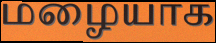
மழையாக